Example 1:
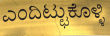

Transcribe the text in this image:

ಎಂದಿಟ್ಟುಕೊಳ್ಳಿ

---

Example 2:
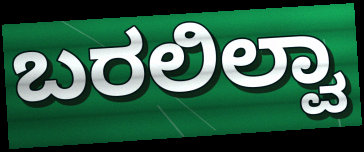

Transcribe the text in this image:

ಬರಲಿಲ್ವಾ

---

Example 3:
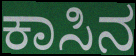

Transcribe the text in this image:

ಕಾಸಿನ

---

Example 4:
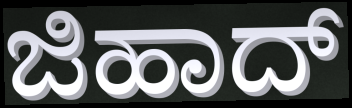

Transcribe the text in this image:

ಜಿಹಾದ್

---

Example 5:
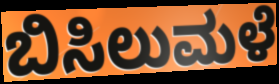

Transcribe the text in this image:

ಬಿಸಿಲುಮಳೆ